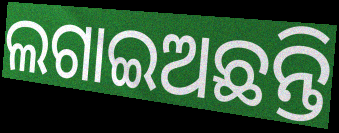
ଲଗାଇଅଛନ୍ତି